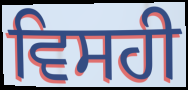
ਵਿਸਹੀ